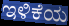
ಇಳಿಕೆಯ